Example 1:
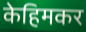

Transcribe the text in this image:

केहिमकर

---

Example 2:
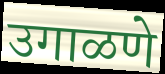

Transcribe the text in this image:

उगाळणे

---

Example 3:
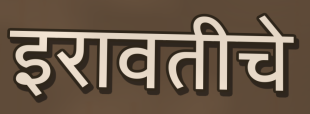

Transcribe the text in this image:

इरावतीचे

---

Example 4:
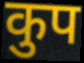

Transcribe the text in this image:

कुप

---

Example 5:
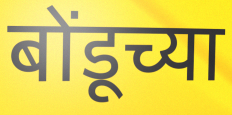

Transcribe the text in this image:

बोंडूच्या